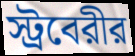
স্ট্রবেরীর